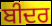
ਬੀਦਰ